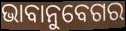
ଭାବାନୁବେଗର